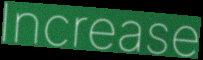
Increase